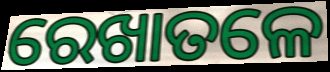
ରେଖାତଳେ